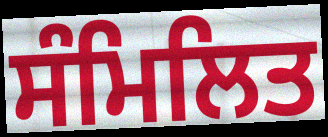
ਸੰਮਿਲਿਤ